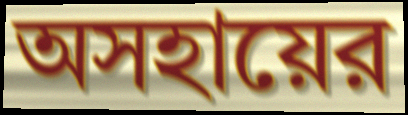
অসহায়ের